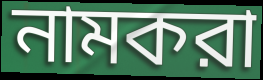
নামকরা